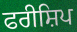
ਫਰੀਸ਼ਿਪ